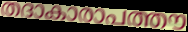
തദാകാരാപത്തൗ